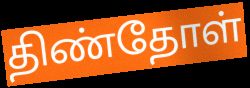
திண்தோள்